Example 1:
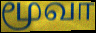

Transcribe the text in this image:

மூவா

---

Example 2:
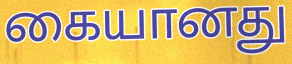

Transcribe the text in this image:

கையானது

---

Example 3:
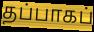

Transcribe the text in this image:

தப்பாகப்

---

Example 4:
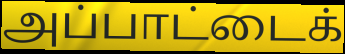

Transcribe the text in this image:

அப்பாட்டைக்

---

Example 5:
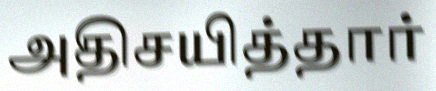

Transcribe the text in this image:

அதிசயித்தார்